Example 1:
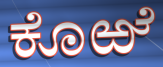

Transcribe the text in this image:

ಕೊಱೆ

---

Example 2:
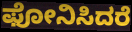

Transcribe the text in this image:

ಫೋನಿಸಿದರೆ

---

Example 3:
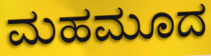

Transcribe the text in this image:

ಮಹಮೂದ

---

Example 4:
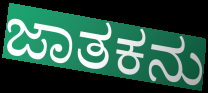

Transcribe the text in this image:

ಜಾತಕನು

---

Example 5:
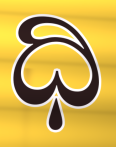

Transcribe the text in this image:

ಧಿ